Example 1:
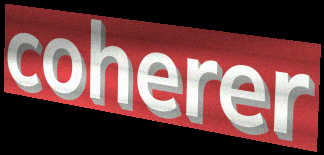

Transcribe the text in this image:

coherer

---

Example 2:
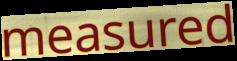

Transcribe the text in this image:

measured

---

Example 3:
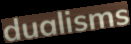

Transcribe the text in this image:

dualisms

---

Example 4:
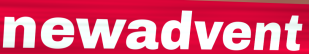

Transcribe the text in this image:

newadvent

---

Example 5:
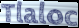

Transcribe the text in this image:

Tlaloc